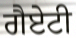
ਗੈਏਟੀ